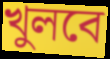
খুলবে